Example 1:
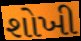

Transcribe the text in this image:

શોખી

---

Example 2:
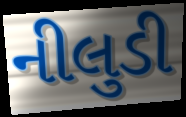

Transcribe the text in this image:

નીલુડી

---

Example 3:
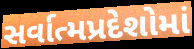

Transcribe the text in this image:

સર્વાત્મપ્રદેશોમાં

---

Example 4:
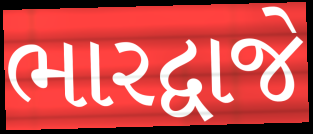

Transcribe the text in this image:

ભારદ્વાજે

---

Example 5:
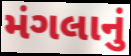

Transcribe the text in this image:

મંગલાનું